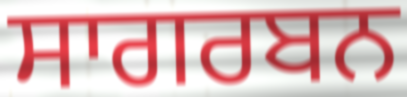
ਸਾਗਰਬਨ